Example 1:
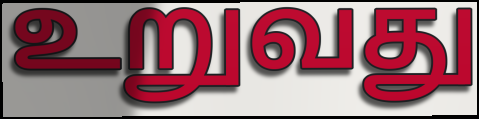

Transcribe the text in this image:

உறுவது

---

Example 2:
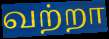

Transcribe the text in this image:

வற்றா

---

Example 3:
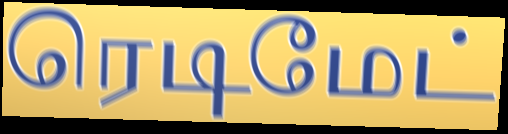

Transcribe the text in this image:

ரெடிமேட்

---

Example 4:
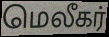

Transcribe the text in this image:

மெலீகர்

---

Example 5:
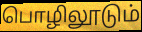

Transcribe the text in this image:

பொழிலூடும்